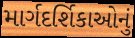
માર્ગદર્શિકાઓનું